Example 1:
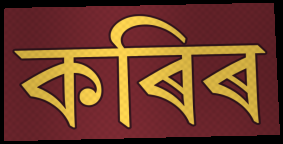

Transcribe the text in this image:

কৰিৰ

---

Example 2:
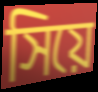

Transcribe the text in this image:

সিয়ে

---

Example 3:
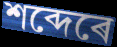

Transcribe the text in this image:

শব্দেৰে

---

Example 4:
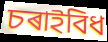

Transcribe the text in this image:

চৰাইবিধ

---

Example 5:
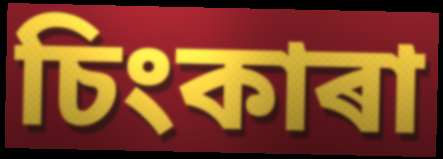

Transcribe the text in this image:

চিংকাৰা